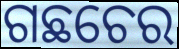
ଗଛଚେର